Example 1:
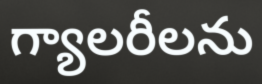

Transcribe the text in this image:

గ్యాలరీలను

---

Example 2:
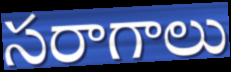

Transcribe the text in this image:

సరాగాలు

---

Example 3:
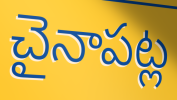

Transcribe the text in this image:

చైనాపట్ల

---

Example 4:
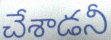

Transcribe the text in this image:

చేశాడనీ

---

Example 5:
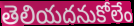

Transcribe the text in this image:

తెలియదనుకోలేం